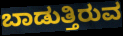
ಬಾಡುತ್ತಿರುವ